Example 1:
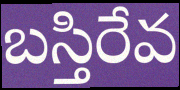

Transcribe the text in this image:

బస్తిరేవ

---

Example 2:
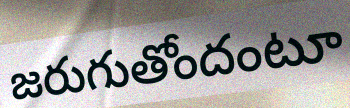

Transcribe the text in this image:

జరుగుతోందంటూ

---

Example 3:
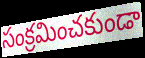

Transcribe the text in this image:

సంక్రమించకుండా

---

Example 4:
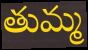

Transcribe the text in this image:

తుమ్మ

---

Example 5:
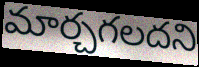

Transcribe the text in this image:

మార్చగలదని